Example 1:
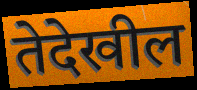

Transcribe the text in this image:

तेदेखील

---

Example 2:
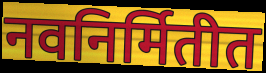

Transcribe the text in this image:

नवनिर्मितीत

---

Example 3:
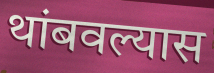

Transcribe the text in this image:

थांबवल्यास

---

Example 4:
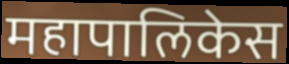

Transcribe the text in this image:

महापालिकेस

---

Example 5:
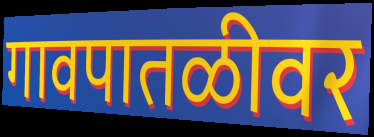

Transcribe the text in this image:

गावपातळीवर